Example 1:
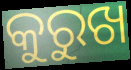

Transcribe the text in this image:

କୁରୁଖ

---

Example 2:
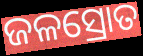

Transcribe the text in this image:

ଜଳସ୍ରୋତ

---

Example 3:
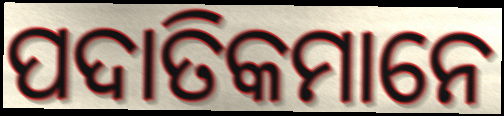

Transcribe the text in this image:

ପଦାତିକମାନେ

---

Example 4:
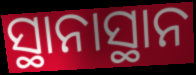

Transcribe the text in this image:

ସ୍ଥାନାସ୍ଥାନ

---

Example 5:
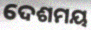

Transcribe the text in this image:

ଦେଶମୟ